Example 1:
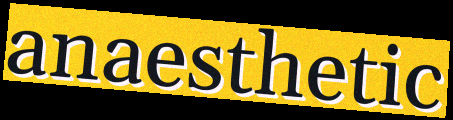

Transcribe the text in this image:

anaesthetic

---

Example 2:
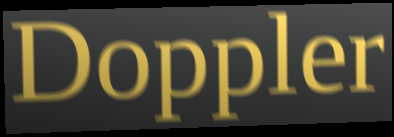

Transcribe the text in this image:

Doppler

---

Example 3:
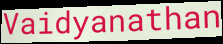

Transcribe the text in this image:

Vaidyanathan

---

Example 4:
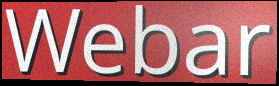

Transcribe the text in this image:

Webar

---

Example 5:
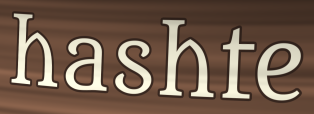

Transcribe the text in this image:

hashte